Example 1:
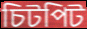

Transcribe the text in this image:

চিটপিট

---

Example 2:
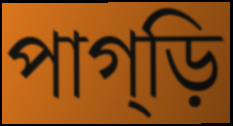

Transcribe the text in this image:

পাগ্ড়ি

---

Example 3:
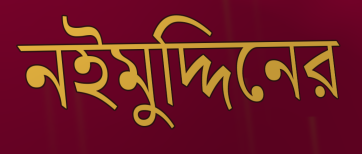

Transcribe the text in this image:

নইমুদ্দিনের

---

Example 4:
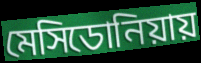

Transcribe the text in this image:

মেসিডোনিয়ায়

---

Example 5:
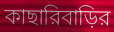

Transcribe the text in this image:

কাছারিবাড়ির